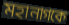
মহানাগকে